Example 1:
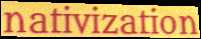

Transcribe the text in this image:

nativization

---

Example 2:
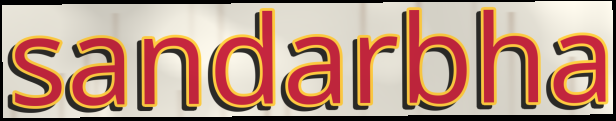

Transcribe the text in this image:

sandarbha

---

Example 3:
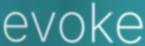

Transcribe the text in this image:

evoke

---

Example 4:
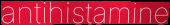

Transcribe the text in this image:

antihistamine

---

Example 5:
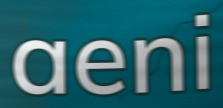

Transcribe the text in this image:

aeni